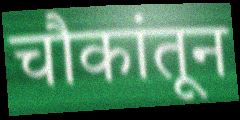
चौकांतून